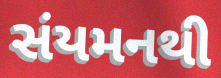
સંયમનથી